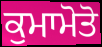
ਕੁਮਾਮੋਤੋ